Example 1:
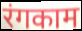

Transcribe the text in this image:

रंगकाम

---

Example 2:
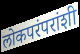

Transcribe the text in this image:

लोकपरंपरांशी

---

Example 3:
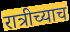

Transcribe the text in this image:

रात्रीच्याच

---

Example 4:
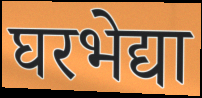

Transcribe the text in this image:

घरभेद्या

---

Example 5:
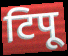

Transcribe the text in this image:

टिपू